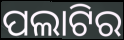
ପଲାଟିର